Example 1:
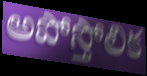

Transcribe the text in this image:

అపోస్తోలిక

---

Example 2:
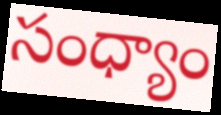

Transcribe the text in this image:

సంధ్యాం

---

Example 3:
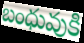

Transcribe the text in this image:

బంధువుకి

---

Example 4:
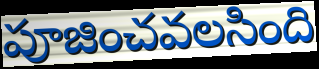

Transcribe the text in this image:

పూజించవలసింది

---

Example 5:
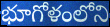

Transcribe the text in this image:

భూగోళంలోని